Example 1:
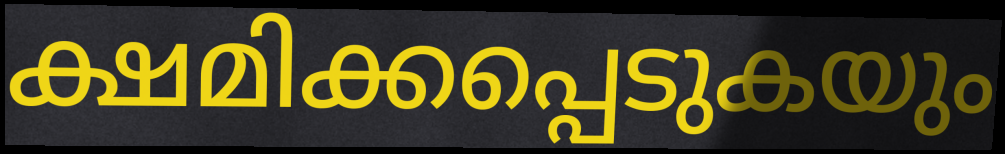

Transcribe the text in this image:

ക്ഷമിക്കപ്പെടുകയും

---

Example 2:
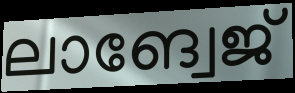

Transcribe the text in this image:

ലാങ്വേജ്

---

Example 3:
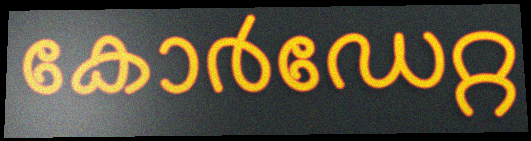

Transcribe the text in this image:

കോർഡേറ്റ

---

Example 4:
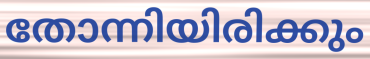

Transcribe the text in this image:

തോന്നിയിരിക്കും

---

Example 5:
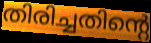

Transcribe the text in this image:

തിരിച്ചതിന്റെ